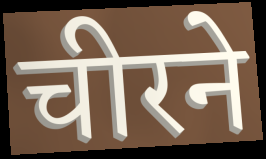
चीरने